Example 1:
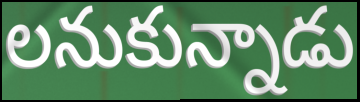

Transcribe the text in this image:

లనుకున్నాడు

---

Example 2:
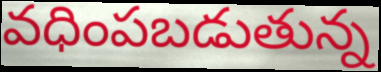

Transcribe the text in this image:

వధింపబడుతున్న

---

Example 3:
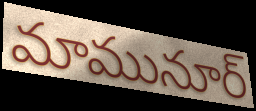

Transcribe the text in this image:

మామునూర్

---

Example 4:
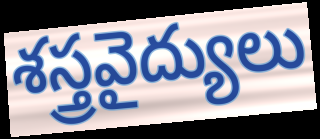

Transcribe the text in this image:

శస్త్రవైద్యులు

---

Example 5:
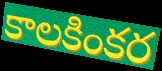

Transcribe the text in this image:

కాలకింకర